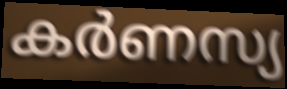
കർണസ്യ